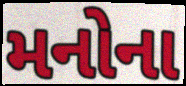
મનોના